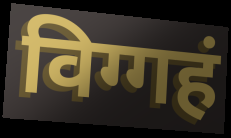
विग्गहं